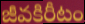
జీవకిరీటం